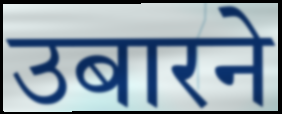
उबारने